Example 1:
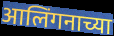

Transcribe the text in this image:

आलिंगनाच्या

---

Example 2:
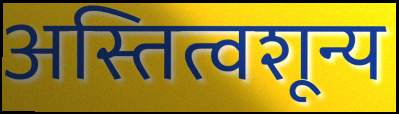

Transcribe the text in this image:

अस्तित्वशून्य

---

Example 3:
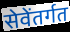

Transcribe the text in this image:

सेवेंतर्गत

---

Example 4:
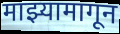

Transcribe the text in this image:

माझ्यामागून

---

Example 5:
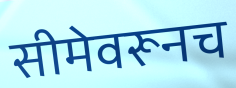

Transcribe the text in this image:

सीमेवरूनच